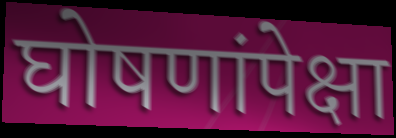
घोषणांपेक्षा